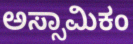
ಅಸ್ಸಾಮಿಕಂ